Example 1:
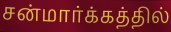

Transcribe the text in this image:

சன்மார்க்கத்தில்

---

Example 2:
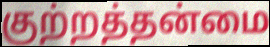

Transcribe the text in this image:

குற்றத்தன்மை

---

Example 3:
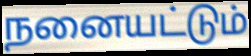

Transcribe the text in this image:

நனையட்டும்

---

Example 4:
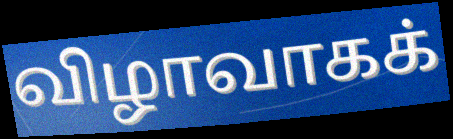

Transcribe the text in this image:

விழாவாகக்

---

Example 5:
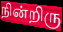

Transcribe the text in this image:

நின்றிரு